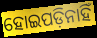
ହୋଇପଡ଼ିନାହିଁ